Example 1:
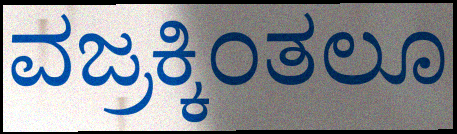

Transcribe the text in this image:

ವಜ್ರಕ್ಕಿಂತಲೂ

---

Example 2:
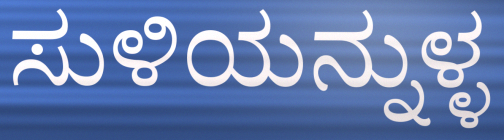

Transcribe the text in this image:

ಸುಳಿಯನ್ನುಳ್ಳ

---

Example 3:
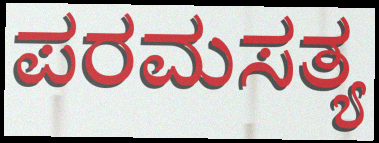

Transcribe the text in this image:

ಪರಮಸತ್ಯ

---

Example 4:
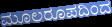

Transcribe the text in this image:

ಮೂಲರೂಪದಿಂದ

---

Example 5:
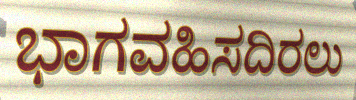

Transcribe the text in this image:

ಭಾಗವಹಿಸದಿರಲು